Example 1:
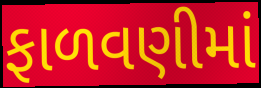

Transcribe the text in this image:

ફાળવણીમાં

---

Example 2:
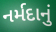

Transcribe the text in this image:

નર્મદાનું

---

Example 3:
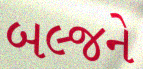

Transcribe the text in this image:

બલ્જને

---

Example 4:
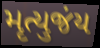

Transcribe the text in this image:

મૃત્યુજંય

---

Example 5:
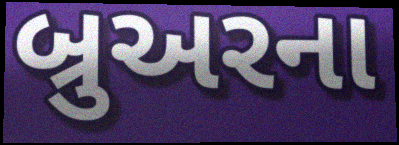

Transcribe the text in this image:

બ્રુઅરના